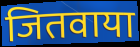
जितवाया